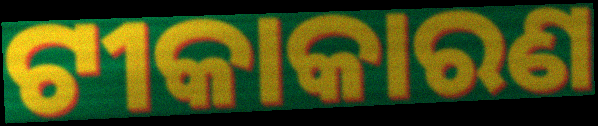
ଟୀକାକାରଣ